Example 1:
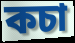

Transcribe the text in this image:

কচা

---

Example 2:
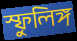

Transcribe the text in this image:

স্ফুলিঙ্গ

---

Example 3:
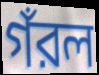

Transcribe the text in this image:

গঁরল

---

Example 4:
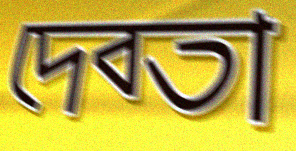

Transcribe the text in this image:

দেব্তা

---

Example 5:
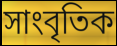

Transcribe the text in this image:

সাংবৃতিক